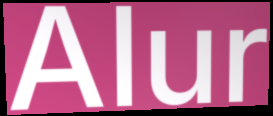
Alur